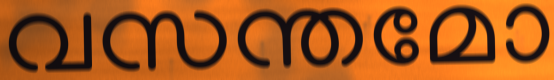
വസന്തമോ